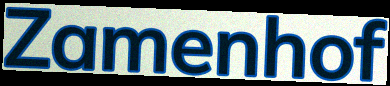
Zamenhof